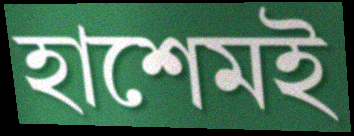
হাশেমই